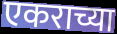
एकराच्या